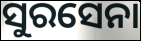
ସୁରସେନା